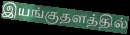
இயங்குதளத்தில்